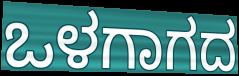
ಒಳಗಾಗದ